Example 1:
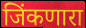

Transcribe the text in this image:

जिंकणारा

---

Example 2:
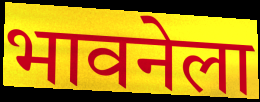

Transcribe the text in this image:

भावनेला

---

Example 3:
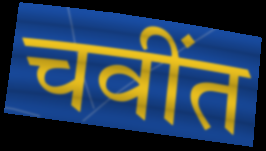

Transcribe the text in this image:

चवींत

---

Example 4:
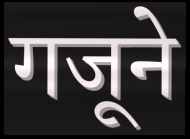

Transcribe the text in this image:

गजूने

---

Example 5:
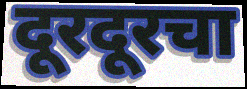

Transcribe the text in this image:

दूरदूरचा